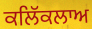
ਕਲਿੱਕਲਾਅ